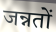
जन्नतों